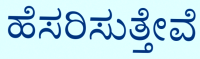
ಹೆಸರಿಸುತ್ತೇವೆ